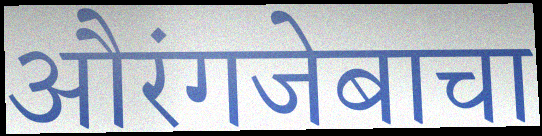
औरंगजेबाचा